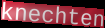
knechten